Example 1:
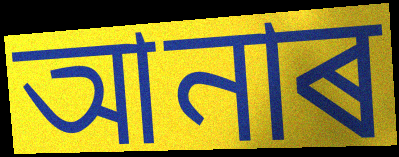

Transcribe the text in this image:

আনাৰ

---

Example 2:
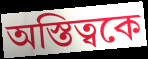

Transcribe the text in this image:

অস্তিত্বকে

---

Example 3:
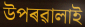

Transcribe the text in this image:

উপৰৱালাই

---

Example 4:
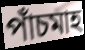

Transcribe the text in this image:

পাঁচমাহ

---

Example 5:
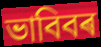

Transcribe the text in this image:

ভাবিবৰ